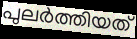
പുലർത്തിയത്